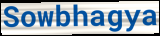
Sowbhagya